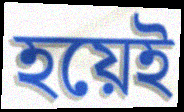
হয়েই